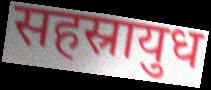
सहस्रायुध